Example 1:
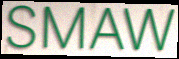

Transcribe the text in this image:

SMAW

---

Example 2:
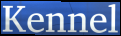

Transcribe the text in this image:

Kennel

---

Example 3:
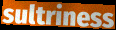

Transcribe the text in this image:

sultriness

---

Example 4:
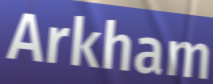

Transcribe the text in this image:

Arkham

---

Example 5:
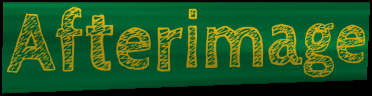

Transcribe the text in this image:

Afterimage